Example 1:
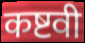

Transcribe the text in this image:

कष्टवी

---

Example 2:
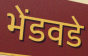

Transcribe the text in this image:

भेंडवडे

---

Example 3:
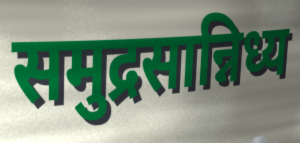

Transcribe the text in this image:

समुद्रसान्निध्य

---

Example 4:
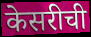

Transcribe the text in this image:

केसरीची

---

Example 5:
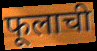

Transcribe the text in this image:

फूलाची